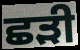
ਛੜੀ